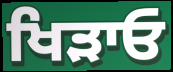
ਖਿੜਾਓ